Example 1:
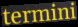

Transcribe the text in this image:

termini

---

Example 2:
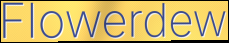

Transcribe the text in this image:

Flowerdew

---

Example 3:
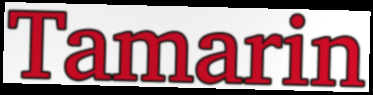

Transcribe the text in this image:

Tamarin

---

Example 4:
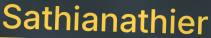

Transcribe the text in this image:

Sathianathier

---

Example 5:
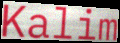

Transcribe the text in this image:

Kalim